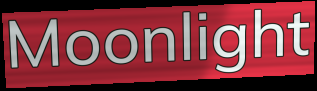
Moonlight